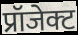
प्रॉजेक्‍ट